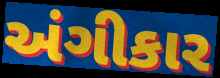
અંગીકાર